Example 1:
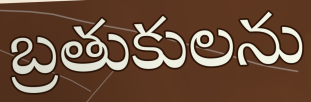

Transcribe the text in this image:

బ్రతుకులను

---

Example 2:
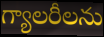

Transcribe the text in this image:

గ్యాలరీలను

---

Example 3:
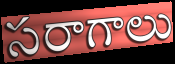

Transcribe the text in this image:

సరాగాలు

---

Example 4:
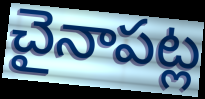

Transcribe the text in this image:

చైనాపట్ల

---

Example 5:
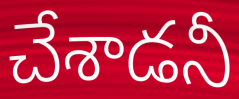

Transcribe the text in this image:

చేశాడనీ